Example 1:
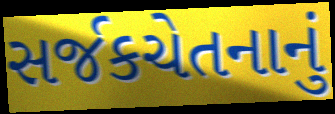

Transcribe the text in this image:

સર્જકચેતનાનું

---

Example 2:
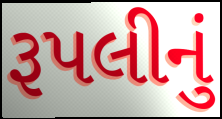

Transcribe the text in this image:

રૂપલીનું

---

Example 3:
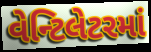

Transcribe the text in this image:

વેન્ટિલેટરમાં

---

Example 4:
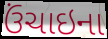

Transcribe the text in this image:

ઉંચાઇના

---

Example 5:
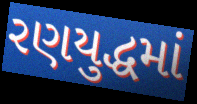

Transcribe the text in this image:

રણયુદ્ધમાં